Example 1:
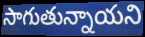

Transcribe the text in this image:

సాగుతున్నాయని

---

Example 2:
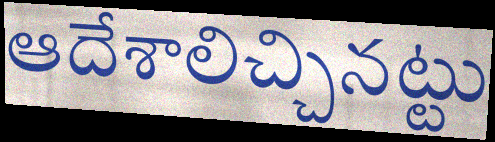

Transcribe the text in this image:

ఆదేశాలిచ్చినట్టు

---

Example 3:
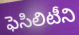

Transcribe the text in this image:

ఫెసిలిటీని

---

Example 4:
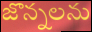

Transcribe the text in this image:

జొన్నలను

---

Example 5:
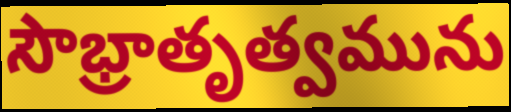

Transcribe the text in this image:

సౌభ్రాతృత్వమును